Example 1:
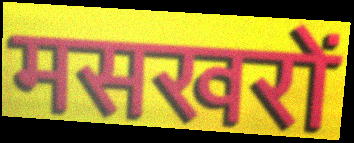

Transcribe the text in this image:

मसखरों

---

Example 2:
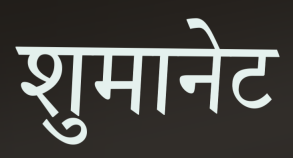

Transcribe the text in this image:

शुमानेट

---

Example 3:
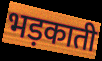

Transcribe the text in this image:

भड़काती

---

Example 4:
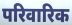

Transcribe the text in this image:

परिवारिक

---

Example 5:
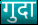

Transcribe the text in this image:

गुदा